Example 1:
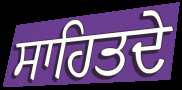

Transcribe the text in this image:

ਸਾਹਿਤਦੇ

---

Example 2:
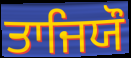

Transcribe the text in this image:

ਤਾਜਿਯੌ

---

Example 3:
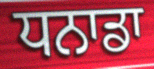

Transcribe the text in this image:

ਧਨਾਡਾ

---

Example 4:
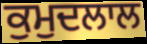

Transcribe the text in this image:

ਕੁਮੁਦਲਾਲ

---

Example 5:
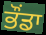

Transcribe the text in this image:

ਭੌਂਡਾ